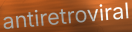
antiretroviral